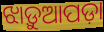
ଝାଡ଼ୁଆପଡ଼ା